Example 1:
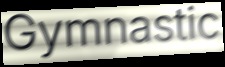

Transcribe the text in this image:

Gymnastic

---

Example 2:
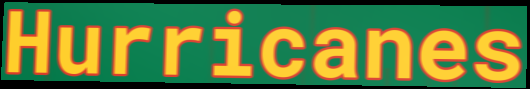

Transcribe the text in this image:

Hurricanes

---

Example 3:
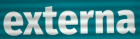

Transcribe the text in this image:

externa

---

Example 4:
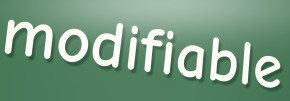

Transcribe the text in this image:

modifiable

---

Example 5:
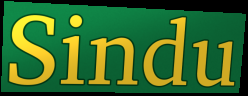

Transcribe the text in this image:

Sindu